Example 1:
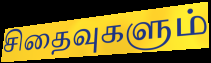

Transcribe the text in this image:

சிதைவுகளும்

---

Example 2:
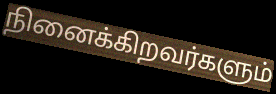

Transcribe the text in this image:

நினைக்கிறவர்களும்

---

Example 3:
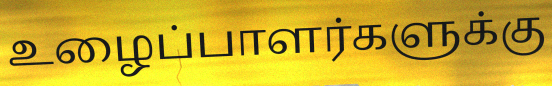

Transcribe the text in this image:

உழைப்பாளர்களுக்கு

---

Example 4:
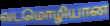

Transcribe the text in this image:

வடமொழியான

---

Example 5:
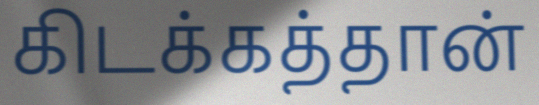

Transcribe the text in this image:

கிடக்கத்தான்